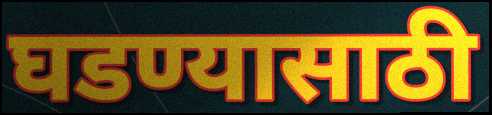
घडण्यासाठी